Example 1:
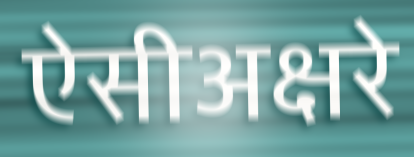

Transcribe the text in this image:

ऐसीअक्षरे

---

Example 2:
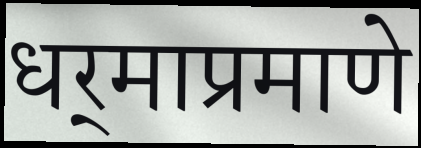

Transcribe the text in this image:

धर्माप्रमाणे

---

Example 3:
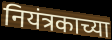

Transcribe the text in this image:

नियंत्रकाच्या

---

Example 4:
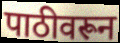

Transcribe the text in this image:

पाठीवरून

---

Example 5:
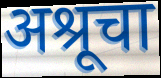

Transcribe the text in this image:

अश्रूचा